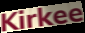
Kirkee